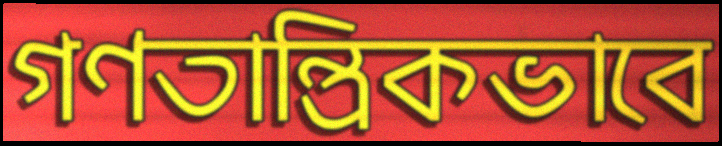
গণতান্ত্রিকভাবে